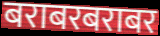
बराबरबराबर